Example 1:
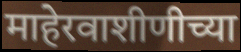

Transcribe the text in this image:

माहेरवाशीणीच्या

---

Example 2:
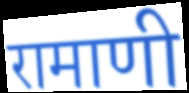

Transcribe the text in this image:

रामाणी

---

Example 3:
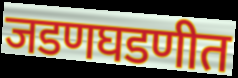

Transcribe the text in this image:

जडणघडणीत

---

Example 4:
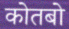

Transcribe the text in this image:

कोतबो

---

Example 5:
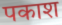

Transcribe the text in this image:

पकाश